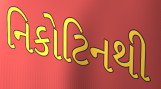
નિકોટિનથી